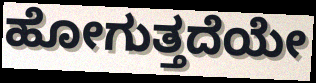
ಹೋಗುತ್ತದೆಯೇ